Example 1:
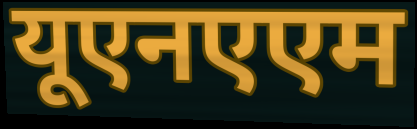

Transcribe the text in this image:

यूएनएएम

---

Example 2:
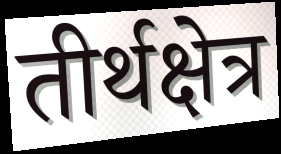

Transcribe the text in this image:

तीर्थक्षेत्र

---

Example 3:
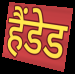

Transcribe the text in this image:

हैंडेड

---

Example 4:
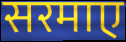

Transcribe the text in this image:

सरमाए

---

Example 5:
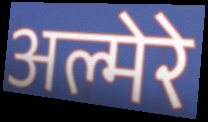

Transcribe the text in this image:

अल्मेरे